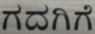
ಗದಗಿಗೆ